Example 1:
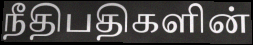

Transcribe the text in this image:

நீதிபதிகளின்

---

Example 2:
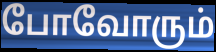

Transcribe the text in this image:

போவோரும்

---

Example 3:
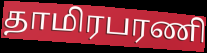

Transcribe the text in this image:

தாமிரபரணி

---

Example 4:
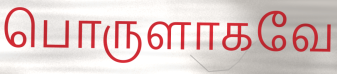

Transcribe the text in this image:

பொருளாகவே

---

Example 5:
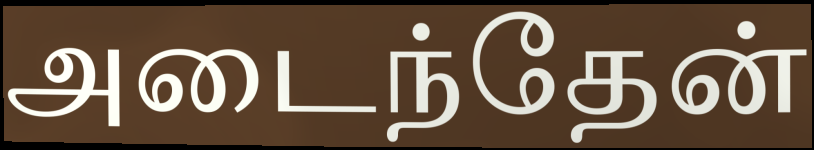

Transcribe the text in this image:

அடைந்தேன்